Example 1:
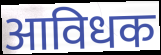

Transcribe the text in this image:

आविधक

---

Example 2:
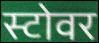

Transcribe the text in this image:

स्टोवर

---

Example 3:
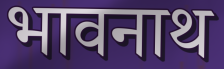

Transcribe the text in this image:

भावनाथ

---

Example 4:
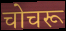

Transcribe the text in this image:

चोचरू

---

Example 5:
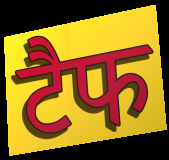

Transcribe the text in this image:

टैफ